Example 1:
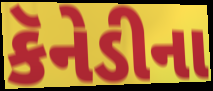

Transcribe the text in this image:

કૅનેડીના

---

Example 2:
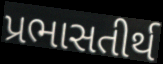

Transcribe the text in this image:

પ્રભાસતીર્થ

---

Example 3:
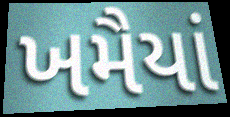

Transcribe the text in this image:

ખમૈયાં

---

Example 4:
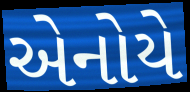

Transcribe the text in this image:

એનોયે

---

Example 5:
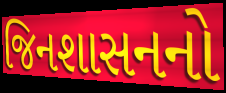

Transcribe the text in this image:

જિનશાસનનો